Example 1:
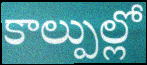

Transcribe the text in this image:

కాల్పుల్లో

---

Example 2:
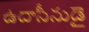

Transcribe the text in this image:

ఉదాసీనుడై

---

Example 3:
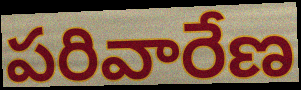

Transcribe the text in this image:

పరివారేణ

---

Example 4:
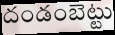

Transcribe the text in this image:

దండంబెట్టు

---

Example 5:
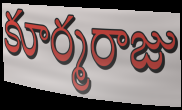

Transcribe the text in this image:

కూర్మరాజు